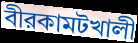
বীরকামটখালী